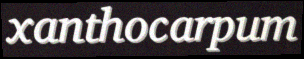
xanthocarpum